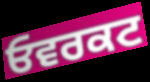
ਓਵਰਕਟ